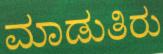
ಮಾಡುತಿರು